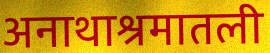
अनाथाश्रमातली